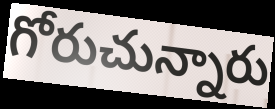
గోరుచున్నారు